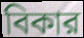
বিকার